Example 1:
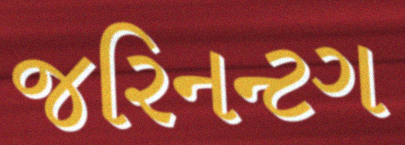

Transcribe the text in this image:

જરિનન્ટગ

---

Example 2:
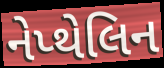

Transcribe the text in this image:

નેપ્થેલિન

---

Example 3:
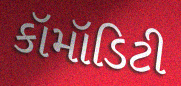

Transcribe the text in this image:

કૉમૉડિટી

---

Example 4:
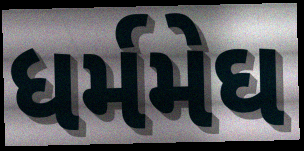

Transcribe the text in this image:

ધર્મમેઘ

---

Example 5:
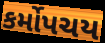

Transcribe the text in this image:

કર્મોપચય